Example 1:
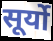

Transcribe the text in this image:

सूर्यो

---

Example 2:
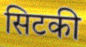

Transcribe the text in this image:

सिटकी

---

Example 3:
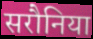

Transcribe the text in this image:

सरौनिया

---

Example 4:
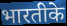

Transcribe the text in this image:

भारतीके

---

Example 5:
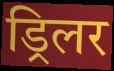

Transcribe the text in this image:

ड्रिलर